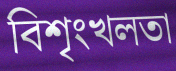
বিশৃংখলতা